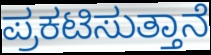
ಪ್ರಕಟಿಸುತ್ತಾನೆ